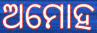
ଅମୋହ